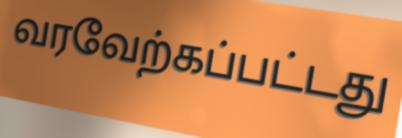
வரவேற்கப்பட்டது